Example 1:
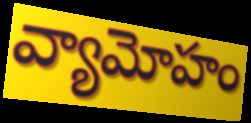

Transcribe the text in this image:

వ్యామోహం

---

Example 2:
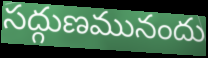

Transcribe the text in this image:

సద్గుణమునందు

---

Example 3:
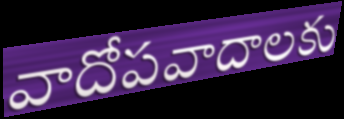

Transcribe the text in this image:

వాదోపవాదాలకు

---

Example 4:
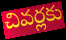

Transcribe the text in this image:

చివర్లకు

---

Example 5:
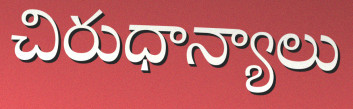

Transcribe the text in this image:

చిరుధాన్యాలు